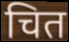
चित